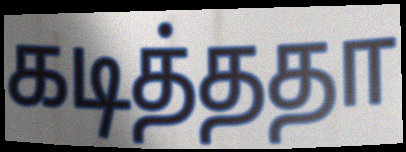
கடித்ததா